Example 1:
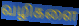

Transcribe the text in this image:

வழிகளை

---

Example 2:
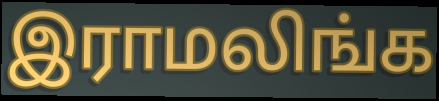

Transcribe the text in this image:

இராமலிங்க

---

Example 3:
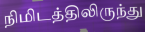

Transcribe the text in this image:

நிமிடத்திலிருந்து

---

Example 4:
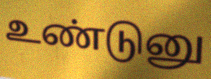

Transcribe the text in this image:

உண்டுனு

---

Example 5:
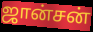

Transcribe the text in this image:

ஜான்சன்